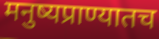
मनुष्यप्राण्यातच